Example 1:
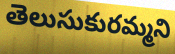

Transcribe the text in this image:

తెలుసుకురమ్మని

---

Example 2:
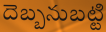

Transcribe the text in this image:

దెబ్బనుబట్టి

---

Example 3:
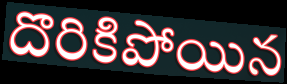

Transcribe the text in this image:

దొరికిపోయిన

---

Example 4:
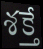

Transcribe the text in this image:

శక్తే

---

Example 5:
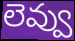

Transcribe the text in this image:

లెవ్వు